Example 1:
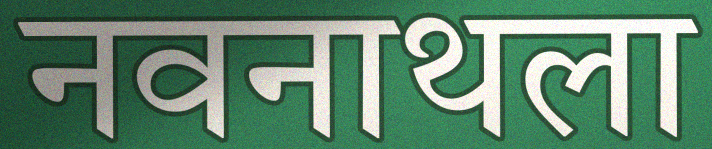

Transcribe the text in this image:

नवनाथला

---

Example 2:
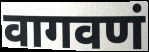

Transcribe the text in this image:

वागवणं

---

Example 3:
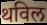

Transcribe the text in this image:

थविल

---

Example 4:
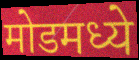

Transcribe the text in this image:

मोडमध्ये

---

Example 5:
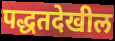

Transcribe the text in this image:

पद्धतदेखील